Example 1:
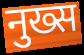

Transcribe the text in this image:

नुख्स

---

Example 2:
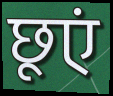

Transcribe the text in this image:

छूएं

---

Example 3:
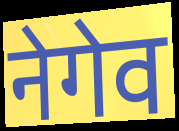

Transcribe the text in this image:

नेगेव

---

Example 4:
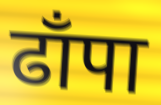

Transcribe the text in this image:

ढाँपा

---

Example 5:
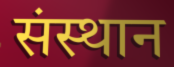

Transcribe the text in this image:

संस्‍थान